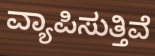
ವ್ಯಾಪಿಸುತ್ತಿವೆ